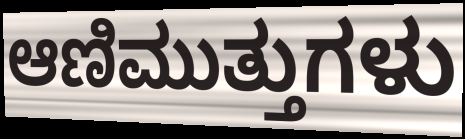
ಆಣಿಮುತ್ತುಗಳು